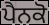
ਪੈਨਕੋ